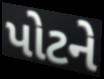
પોટને